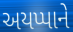
અયપ્પાને